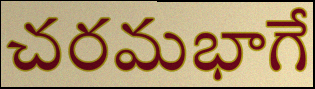
చరమభాగే